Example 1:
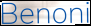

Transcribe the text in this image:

Benoni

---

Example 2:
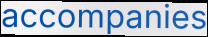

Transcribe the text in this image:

accompanies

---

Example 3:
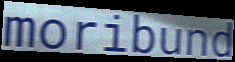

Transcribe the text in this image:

moribund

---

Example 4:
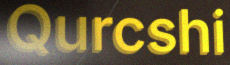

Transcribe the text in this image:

Qurcshi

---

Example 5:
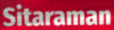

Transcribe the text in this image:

Sitaraman